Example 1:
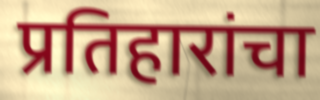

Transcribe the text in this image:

प्रतिहारांचा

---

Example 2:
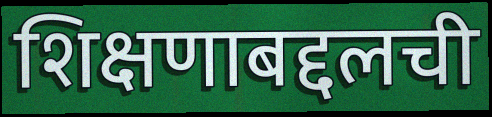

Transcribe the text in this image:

शिक्षणाबद्दलची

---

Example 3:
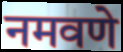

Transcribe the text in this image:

नमवणे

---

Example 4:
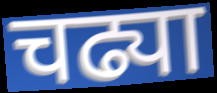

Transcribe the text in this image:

चढ्या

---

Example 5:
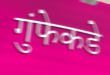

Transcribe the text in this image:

गुंफेकडे